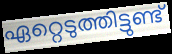
ഏറ്റെടുത്തിട്ടുണ്ട്